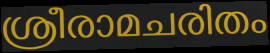
ശ്രീരാമചരിതം